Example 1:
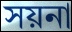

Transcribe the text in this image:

সয়না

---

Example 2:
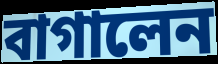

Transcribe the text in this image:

বাগালেন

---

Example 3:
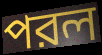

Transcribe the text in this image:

পরল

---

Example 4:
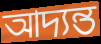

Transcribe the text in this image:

আদ্যন্ত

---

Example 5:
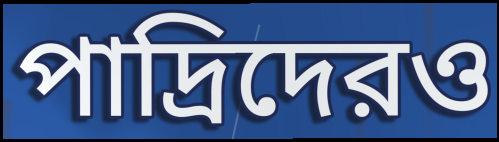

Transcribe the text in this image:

পাদ্রিদেরও